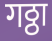
गठ्ठा